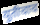
युतीचाच